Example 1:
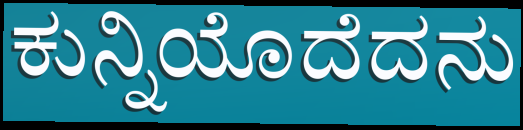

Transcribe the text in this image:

ಕುನ್ನಿಯೊದೆದನು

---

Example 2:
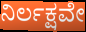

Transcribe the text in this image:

ನಿರ್ಲಕ್ಷವೇ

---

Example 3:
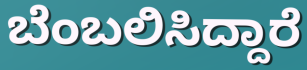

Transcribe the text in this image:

ಬೆಂಬಲಿಸಿದ್ದಾರೆ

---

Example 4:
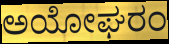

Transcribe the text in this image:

ಅಯೋಘರಂ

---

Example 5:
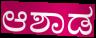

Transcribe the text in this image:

ಆಶಾಡ